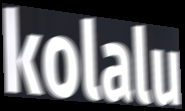
kolalu